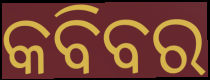
କବିବର